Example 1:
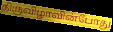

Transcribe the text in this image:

திருவிழாவின்போது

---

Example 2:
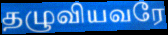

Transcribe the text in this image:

தழுவியவரே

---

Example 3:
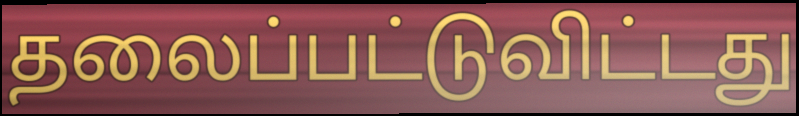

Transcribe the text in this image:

தலைப்பட்டுவிட்டது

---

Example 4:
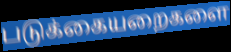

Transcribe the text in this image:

படுக்கையறைகளை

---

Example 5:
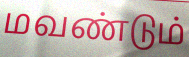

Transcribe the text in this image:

மவண்டும்